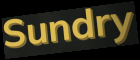
Sundry